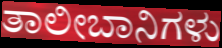
ತಾಲೀಬಾನಿಗಳು